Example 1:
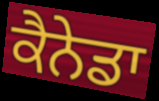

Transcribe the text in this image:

ਕੈਨੇਡਾ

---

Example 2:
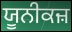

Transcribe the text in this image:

ਯੂਨੀਕਜ਼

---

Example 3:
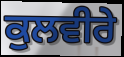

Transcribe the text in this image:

ਕੁਲਵੀਰੇ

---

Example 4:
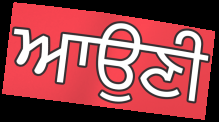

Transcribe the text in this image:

ਆਉਣੀ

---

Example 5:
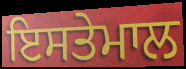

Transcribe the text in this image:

ਇਸਤੇਮਾਲ